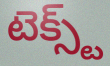
టెక్స్ట్